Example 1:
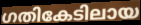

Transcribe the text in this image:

ഗതികേടിലായ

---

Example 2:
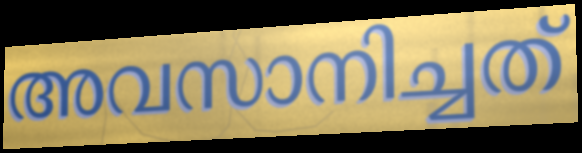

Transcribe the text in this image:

അവസാനിച്ചത്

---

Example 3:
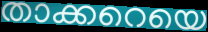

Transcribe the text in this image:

താക്കറെയെ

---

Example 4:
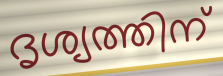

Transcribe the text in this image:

ദൃശ്യത്തിന്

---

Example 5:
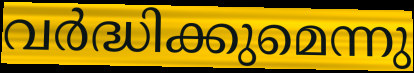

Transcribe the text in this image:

വർദ്ധിക്കുമെന്നു